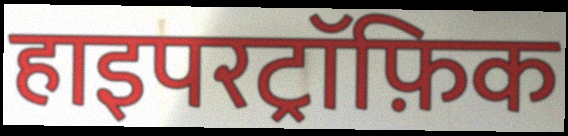
हाइपरट्रॉफ़िक